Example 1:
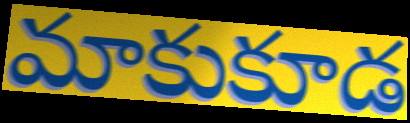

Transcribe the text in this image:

మాకుకూడ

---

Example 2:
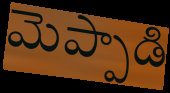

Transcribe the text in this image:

మెప్పాడి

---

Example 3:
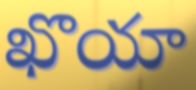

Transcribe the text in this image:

ఖొయా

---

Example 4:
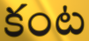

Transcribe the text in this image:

కంట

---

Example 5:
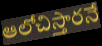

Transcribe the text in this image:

ఆలోచిస్తారనే